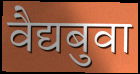
वैद्यबुवा